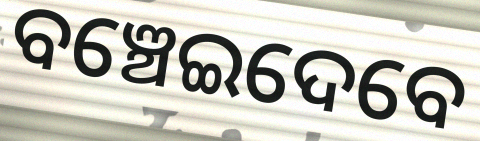
ବଞ୍ଚେଇଦେବେ